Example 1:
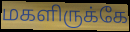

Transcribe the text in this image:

மகளிருக்கே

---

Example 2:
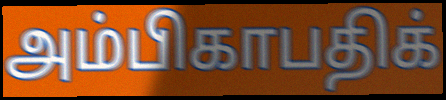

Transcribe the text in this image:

அம்பிகாபதிக்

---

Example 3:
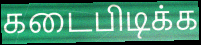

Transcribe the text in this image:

கடைபிடிக்க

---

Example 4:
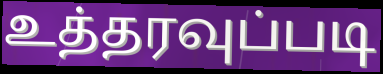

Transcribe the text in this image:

உத்தரவுப்படி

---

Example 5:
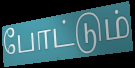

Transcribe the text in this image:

போட்டும்